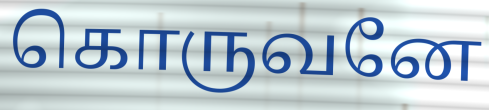
கொருவனே